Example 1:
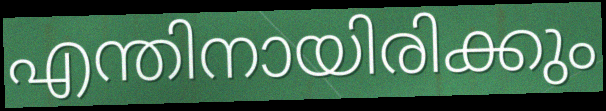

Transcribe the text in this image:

എന്തിനായിരിക്കും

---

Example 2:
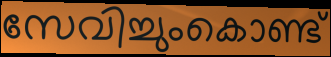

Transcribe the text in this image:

സേവിച്ചുംകൊണ്ട്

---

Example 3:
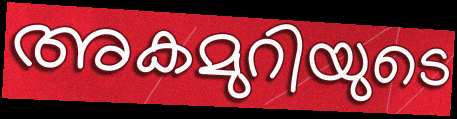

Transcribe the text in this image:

അകമുറിയുടെ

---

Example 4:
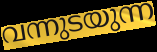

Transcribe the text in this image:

വന്നുടയുന്ന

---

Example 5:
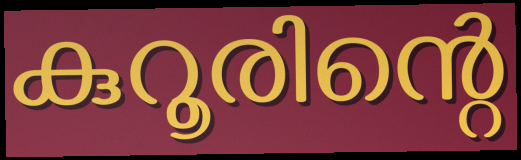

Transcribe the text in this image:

കുറൂരിന്റെ